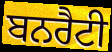
ਬਨਰੈਟੀ